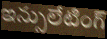
ఇన్సులేటింగ్